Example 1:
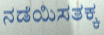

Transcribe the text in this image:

ನಡೆಯಿಸತಕ್ಕ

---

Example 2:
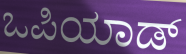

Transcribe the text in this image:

ಒಪಿಯಾಡ್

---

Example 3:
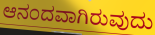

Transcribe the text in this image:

ಆನಂದವಾಗಿರುವುದು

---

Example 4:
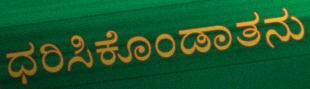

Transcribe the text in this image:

ಧರಿಸಿಕೊಂಡಾತನು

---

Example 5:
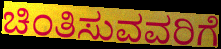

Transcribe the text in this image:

ಚಿಂತಿಸುವವರಿಗೆ